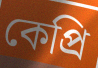
কেপ্রি